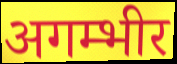
अगम्भीर